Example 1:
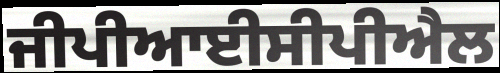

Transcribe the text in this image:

ਜੀਪੀਆਈਸੀਪੀਐਲ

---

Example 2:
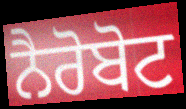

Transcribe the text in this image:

ਨੈਰੋਬੋਟ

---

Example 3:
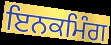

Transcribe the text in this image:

ਇਨਕਮਿੰਗ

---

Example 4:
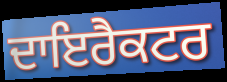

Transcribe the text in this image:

ਦਾਇਰੈਕਟਰ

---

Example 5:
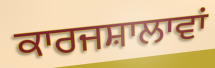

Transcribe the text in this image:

ਕਾਰਜਸ਼ਾਲਾਵਾਂ